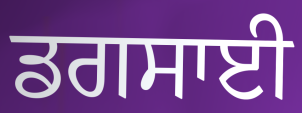
ਡਗਸਾਈ